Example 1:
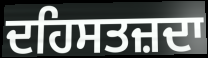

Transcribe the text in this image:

ਦਹਿਸਤਜ਼ਦਾ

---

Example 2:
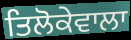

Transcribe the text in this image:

ਤਿਲੋਕੇਵਾਲਾ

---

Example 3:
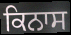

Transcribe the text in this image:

ਕਿਨਾਸ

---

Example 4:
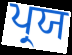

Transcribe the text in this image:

ਪ੍ਰਯ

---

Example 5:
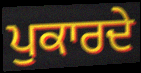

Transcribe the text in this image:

ਪੁਕਾਰਦੇ